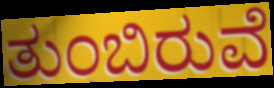
ತುಂಬಿರುವೆ